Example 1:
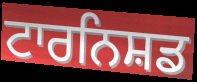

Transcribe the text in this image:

ਟਾਰਨਿਸ਼ਡ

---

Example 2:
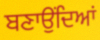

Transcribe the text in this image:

ਬਣਾਉਂਦਿਆਂ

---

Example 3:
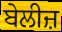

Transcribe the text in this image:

ਬੇਲੀਜ਼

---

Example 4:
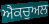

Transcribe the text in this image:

ਐਕਚੁਅਲ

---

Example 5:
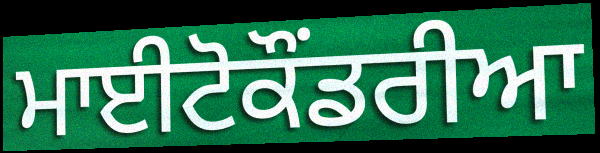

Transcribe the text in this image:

ਮਾਈਟੋਕੌਂਡਰੀਆ